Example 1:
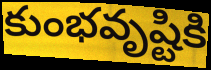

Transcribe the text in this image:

కుంభవృష్టికి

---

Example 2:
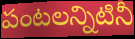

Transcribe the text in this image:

పంటలన్నిటినీ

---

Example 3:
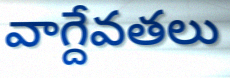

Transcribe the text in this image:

వాగ్దేవతలు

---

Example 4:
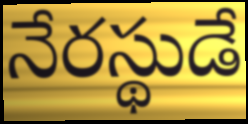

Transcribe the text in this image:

నేరస్థుడే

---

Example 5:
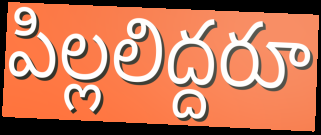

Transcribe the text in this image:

పిల్లలిద్దరూ